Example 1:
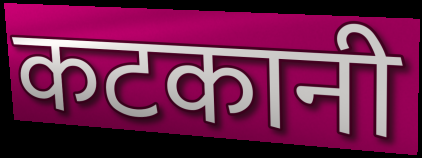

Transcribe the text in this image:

कटकानी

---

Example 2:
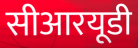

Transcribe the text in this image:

सीआरयूडी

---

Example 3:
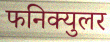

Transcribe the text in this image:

फनिक्युलर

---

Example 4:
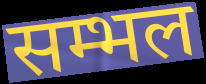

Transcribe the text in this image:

सम्भल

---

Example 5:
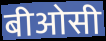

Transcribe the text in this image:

बीओसी